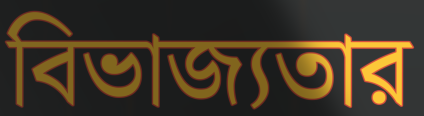
বিভাজ্যতার